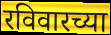
रविवारच्या